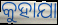
କୁହାଯା